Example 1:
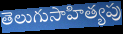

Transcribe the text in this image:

తెలుగుసాహిత్యపు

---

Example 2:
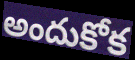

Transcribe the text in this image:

అందుకోక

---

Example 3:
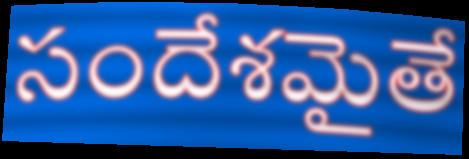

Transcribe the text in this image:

సందేశమైతే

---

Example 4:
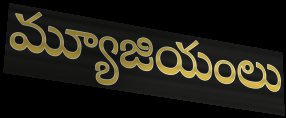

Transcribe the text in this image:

మ్యూజియంలు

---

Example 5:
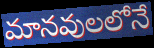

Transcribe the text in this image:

మానవులలోనే